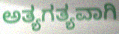
ಅತ್ಯಗತ್ಯವಾಗಿ